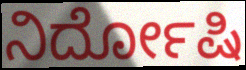
ನಿರ್ದೋಷಿ